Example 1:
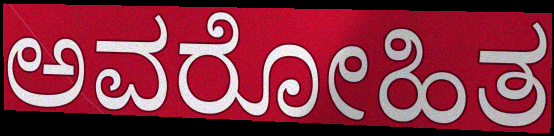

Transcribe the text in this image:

ಅವರೋಹಿತ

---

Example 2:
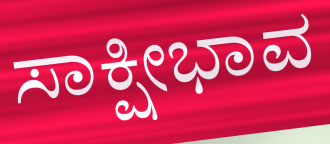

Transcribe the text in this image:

ಸಾಕ್ಷೀಭಾವ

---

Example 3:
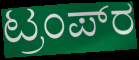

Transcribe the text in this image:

ಟ್ರಂಪ್‍ರ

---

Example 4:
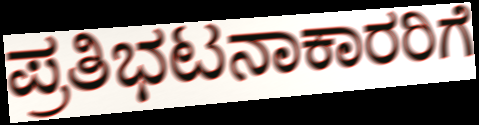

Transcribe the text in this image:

ಪ್ರತಿಭಟನಾಕಾರರಿಗೆ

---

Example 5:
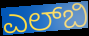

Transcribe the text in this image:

ಎಲ್‌ಬಿ